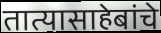
तात्यासाहेबांचे